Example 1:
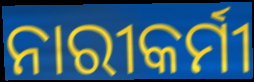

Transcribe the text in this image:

ନାରୀକର୍ମୀ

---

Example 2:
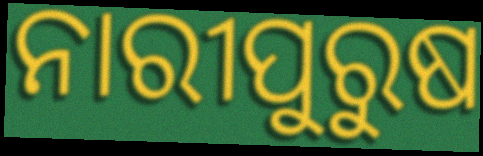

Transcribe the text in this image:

ନାରୀପୁରୁଷ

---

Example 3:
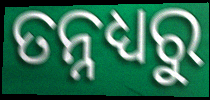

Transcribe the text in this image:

ତନ୍ନଧ୍ୟରୁ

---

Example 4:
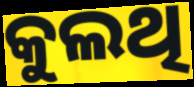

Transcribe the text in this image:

କୁଲଥି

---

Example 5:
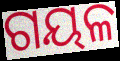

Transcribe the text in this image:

ଗୟଳ